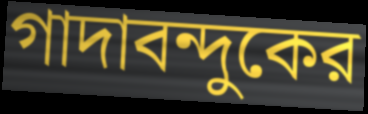
গাদাবন্দুকের